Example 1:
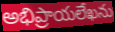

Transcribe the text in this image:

అభిప్రాయలేఖను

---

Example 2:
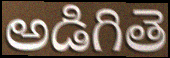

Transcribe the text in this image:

అడిగితె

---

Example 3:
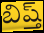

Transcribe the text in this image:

బిష్త్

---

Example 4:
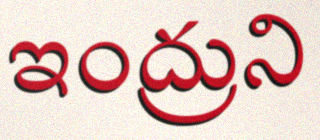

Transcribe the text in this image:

ఇంద్రుని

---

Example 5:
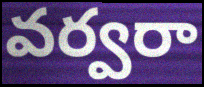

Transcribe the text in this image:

వర్వరా